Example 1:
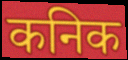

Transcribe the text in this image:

कनिक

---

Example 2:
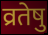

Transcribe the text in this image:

व्रतेषु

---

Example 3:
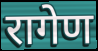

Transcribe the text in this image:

रागेण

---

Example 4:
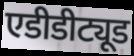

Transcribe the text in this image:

एडीडीट्यूड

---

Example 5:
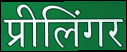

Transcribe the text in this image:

प्रीलिंगर